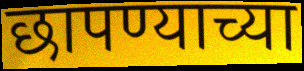
छापण्याच्या